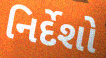
નિર્દેશો